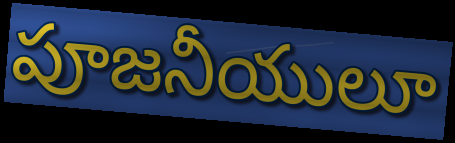
పూజనీయులూ